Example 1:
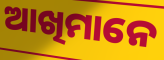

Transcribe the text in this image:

ଆଖିମାନେ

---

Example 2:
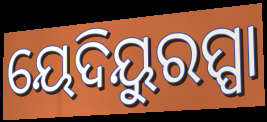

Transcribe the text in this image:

ୟେଦିୟୁରପ୍ପା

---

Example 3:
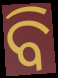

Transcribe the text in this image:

ବି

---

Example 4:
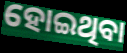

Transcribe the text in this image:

ହୋଇଥିବା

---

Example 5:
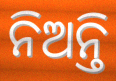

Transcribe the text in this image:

ନିଅନ୍ତି